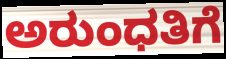
ಅರುಂಧತಿಗೆ